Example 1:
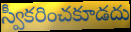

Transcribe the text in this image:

స్వీకరించకూడదు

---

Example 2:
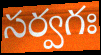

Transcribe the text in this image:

సర్వగః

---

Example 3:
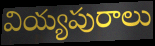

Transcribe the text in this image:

వియ్యపురాలు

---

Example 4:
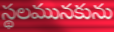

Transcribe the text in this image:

స్థలమునకును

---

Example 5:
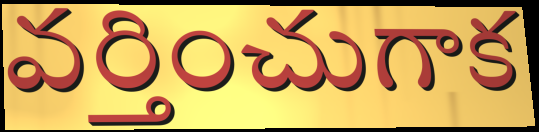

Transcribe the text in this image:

వర్తించుగాక